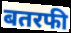
बतरफी